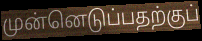
முன்னெடுப்பதற்குப்